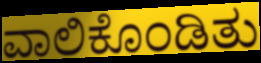
ವಾಲಿಕೊಂಡಿತು